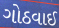
ગોઠવાઈ